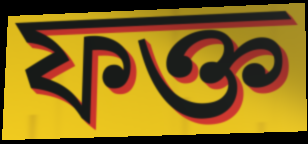
ফক্ত